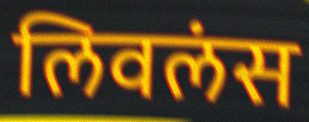
लिवलंस